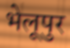
भेलूपुर